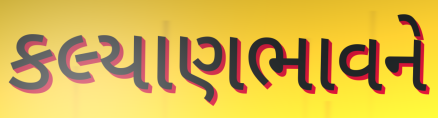
કલ્યાણભાવને